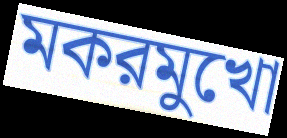
মকরমুখো